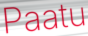
Paatu